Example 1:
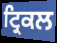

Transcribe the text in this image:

ਟ੍ਰਿਕਲ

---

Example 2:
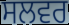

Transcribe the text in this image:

ਸਲਵਰ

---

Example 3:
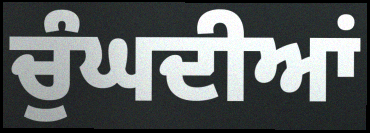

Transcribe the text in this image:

ਚੁੰਘਦੀਆਂ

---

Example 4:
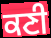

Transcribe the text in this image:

ਕਣੀ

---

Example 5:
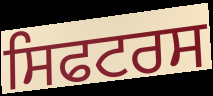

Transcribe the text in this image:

ਸਿਫਟਰਸ